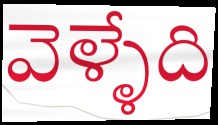
వెళ్ళేది